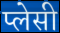
प्लेसी